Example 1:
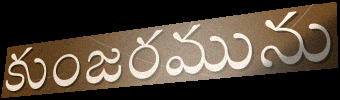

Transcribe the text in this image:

కుంజరమును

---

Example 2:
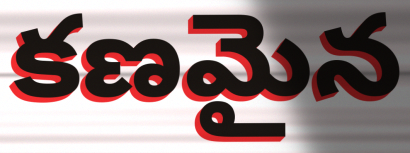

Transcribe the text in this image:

కణమైన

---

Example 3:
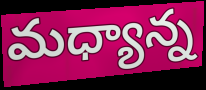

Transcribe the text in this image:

మధ్యాన్న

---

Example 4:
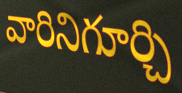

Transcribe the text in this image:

వారినిగూర్చి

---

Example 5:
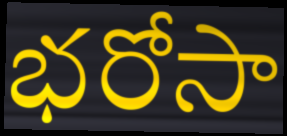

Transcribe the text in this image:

భరోసా